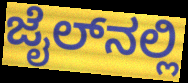
ಜೈಲ್‌ನಲ್ಲಿ